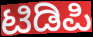
ಟಿಡಿಪಿ